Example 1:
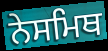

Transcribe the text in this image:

ਨੇਸਮਿਥ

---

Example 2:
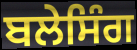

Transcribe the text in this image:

ਬਲੇਸਿੰਗ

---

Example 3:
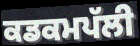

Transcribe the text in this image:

ਕਡਕਮਪੱਲੀ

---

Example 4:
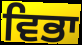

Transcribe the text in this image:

ਵਿਭਾ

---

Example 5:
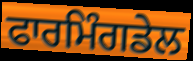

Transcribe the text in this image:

ਫਾਰਮਿੰਗਡੇਲ